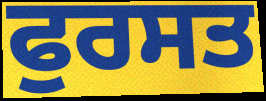
ਫੁਰਸਤ